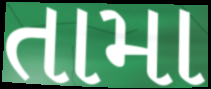
તામા